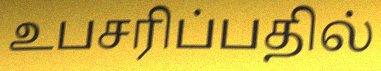
உபசரிப்பதில்